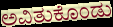
ಅವಿತುಕೊಂಡು